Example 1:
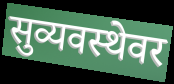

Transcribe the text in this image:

सुव्यवस्थेवर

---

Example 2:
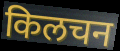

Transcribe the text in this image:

किलचन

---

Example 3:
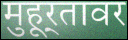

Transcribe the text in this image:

मुहूर्तावर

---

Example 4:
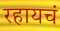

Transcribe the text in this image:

रहायचं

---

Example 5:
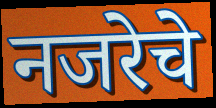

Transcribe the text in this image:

नजरेचे